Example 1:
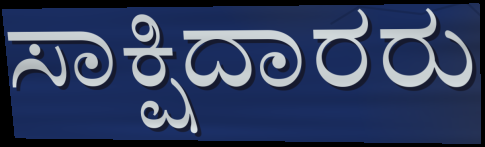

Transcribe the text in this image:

ಸಾಕ್ಷಿದಾರರು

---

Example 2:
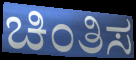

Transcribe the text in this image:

ಚಿಂತಿಸ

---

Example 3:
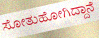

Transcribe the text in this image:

ಸೋತುಹೋಗಿದ್ದಾನೆ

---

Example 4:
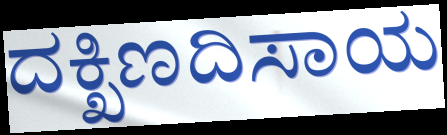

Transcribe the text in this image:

ದಕ್ಖಿಣದಿಸಾಯ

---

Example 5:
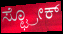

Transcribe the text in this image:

ಸ್ಟ್ರೋಕ್